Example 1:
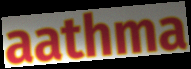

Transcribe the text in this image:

aathma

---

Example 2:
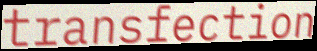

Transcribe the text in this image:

transfection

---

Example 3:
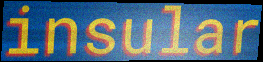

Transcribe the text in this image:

insular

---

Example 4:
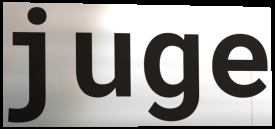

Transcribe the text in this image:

juge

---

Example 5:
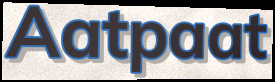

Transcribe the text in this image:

Aatpaat